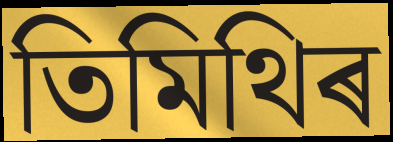
তিমিথিৰ